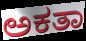
ಅಕತಾ